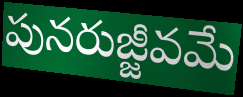
పునరుజ్జీవమే